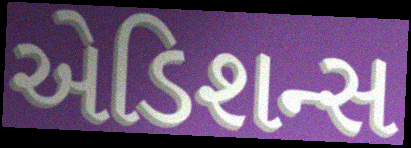
એડિશન્સ